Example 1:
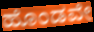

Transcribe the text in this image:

ಹೊಂಡವೇ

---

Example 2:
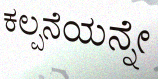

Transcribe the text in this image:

ಕಲ್ಪನೆಯನ್ನೇ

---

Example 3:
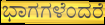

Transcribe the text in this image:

ಭಾಗಗಳೆಂದರೆ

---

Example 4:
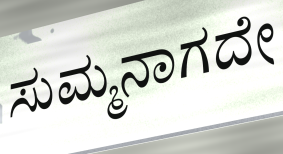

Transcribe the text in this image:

ಸುಮ್ಮನಾಗದೇ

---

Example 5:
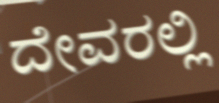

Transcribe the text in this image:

ದೇವರಲ್ಲಿ